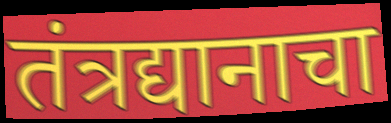
तंत्रद्यानाचा